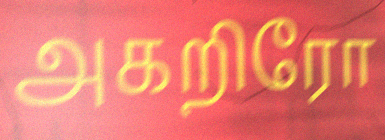
அகறிரோ